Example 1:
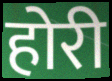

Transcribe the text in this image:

होरी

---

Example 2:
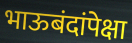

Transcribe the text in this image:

भाऊबंदांपेक्षा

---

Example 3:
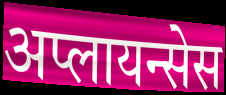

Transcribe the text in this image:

अप्लायन्सेस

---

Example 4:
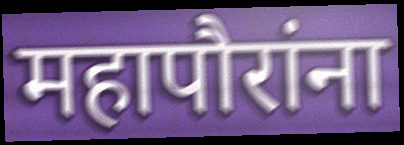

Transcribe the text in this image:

महापौरांना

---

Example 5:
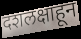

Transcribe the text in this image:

दशलक्षाहून